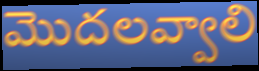
మొదలవ్వాలి